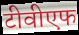
टीवीएफ